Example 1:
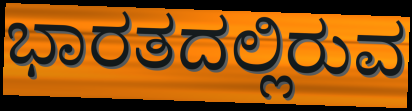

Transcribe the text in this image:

ಭಾರತದಲ್ಲಿರುವ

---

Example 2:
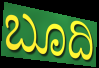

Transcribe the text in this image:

ಬೂದಿ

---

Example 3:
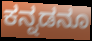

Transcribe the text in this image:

ಕನ್ನಡನೂ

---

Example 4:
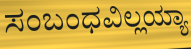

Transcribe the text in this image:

ಸಂಬಂಧವಿಲ್ಲಯ್ಯಾ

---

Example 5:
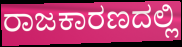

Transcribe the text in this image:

ರಾಜಕಾರಣದಲ್ಲಿ